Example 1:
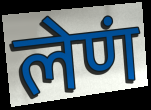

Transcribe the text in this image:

लेणं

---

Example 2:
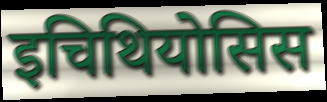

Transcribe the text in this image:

इचिथियोसिस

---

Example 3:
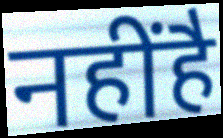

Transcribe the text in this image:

नहींहै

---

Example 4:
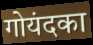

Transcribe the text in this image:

गोयंदका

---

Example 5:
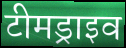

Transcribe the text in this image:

टीमड्राइव